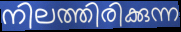
നിലത്തിരിക്കുന്ന